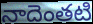
నాదెంతటి